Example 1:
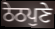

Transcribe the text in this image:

ਠੇਠਪੁਣੇ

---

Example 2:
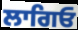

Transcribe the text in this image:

ਲਾਗਿਓ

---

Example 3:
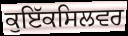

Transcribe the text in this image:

ਕੁਇੱਕਸਿਲਵਰ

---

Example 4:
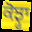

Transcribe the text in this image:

ਕੋਝ੍ਹਾ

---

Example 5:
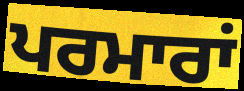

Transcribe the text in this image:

ਪਰਮਾਰਾਂ